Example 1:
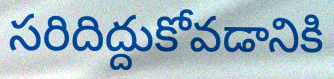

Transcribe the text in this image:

సరిదిద్దుకోవడానికి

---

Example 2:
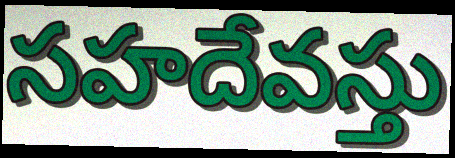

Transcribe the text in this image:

సహదేవస్తు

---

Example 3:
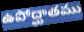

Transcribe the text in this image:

ఉపోద్ఘాతము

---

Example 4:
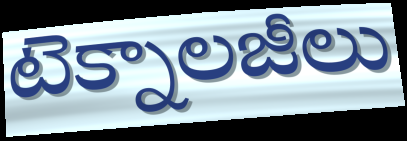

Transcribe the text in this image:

టెక్నాలజీలు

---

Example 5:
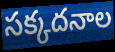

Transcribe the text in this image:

సక్కదనాల